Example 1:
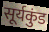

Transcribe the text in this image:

सूर्यकुंड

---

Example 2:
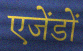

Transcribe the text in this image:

एजेंडों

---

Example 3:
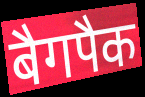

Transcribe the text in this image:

बैगपैक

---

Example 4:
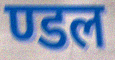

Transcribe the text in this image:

ण्डल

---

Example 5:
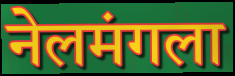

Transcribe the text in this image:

नेलमंगला